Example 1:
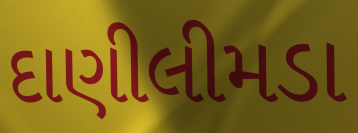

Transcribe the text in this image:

દાણીલીમડા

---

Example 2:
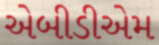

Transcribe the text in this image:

એબીડીએમ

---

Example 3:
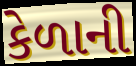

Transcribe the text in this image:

કેળાની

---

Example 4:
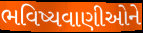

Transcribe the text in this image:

ભવિષ્યવાણીઓને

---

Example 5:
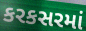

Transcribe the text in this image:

કરકસરમાં